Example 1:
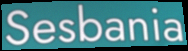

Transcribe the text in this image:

Sesbania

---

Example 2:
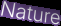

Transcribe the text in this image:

Nature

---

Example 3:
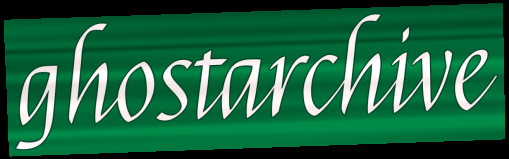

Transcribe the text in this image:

ghostarchive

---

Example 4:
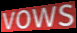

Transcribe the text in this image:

vows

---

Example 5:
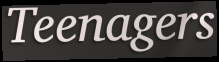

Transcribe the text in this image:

Teenagers